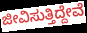
ಜೀವಿಸುತ್ತಿದ್ದೇವೆ